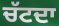
ਚੱਟਦਾ